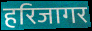
हरिजागर